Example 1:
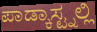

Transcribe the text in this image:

ಪಾಡ್ಕಾಸ್ಟ್ನಲ್ಲಿ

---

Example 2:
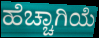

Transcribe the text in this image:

ಹೆಚ್ಚಾಗಿಯೆ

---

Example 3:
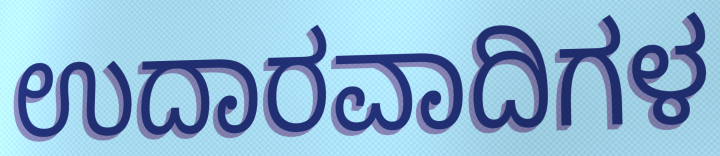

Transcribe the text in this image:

ಉದಾರವಾದಿಗಳ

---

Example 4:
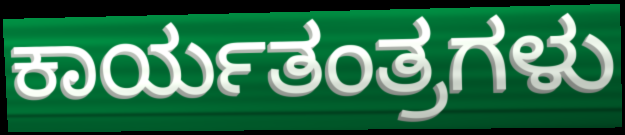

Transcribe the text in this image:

ಕಾರ್ಯತಂತ್ರಗಳು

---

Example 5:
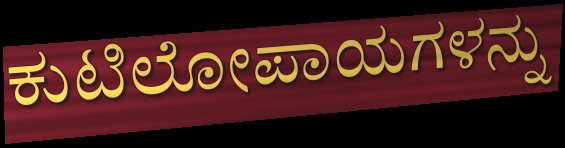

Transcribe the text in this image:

ಕುಟಿಲೋಪಾಯಗಳನ್ನು